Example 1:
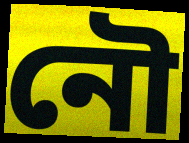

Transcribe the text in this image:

নৌ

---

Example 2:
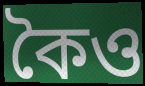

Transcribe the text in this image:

কৈও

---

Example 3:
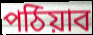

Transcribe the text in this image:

পঠিয়াব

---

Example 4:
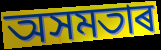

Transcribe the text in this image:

অসমতাৰ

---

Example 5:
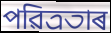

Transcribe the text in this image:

পৱিত্ৰতাৰ